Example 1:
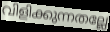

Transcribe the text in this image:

വിളിക്കുന്നതല്ലേ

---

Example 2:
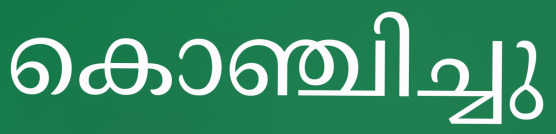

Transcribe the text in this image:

കൊഞ്ചിച്ചു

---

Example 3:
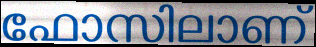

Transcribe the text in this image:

ഫോസിലാണ്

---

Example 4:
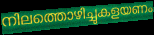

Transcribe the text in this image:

നിലത്തൊഴിച്ചുകളയണം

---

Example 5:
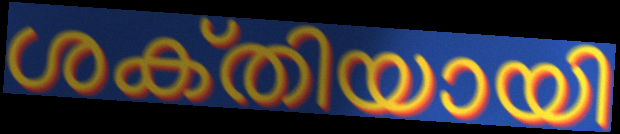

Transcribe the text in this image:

ശക്‌തിയായി